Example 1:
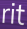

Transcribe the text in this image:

rit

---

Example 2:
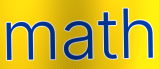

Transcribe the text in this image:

math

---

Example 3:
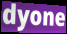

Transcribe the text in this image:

dyone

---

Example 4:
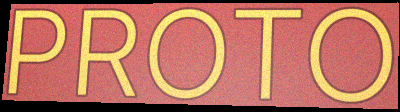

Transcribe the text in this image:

PROTO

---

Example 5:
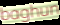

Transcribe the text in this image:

baghun